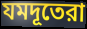
যমদূতেরা